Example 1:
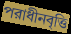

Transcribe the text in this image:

পরাধীনবৃত্তি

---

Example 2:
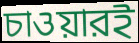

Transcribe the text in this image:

চাওয়ারই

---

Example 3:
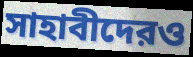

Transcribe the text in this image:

সাহাবীদেরও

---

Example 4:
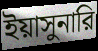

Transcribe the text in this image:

ইয়াসুনারি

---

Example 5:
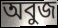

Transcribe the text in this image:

অবুজ